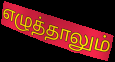
எழுத்தாலும்